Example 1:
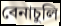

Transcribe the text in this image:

বেনাচুলি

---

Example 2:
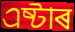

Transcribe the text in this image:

এষ্টাৰ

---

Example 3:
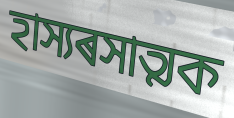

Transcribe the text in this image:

হাস্যৰসাত্মক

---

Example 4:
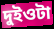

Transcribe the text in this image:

দুইওটা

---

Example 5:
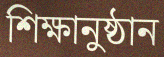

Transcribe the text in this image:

শিক্ষানুষ্ঠান